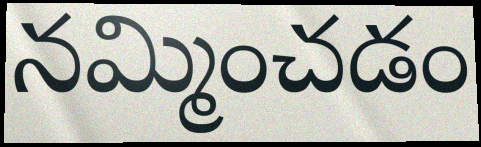
నమ్మించడం